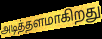
அடித்தளமாகிறது